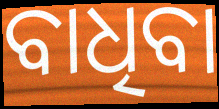
ବାଧିବା